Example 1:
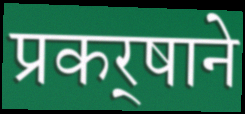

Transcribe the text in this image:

प्रकर्षाने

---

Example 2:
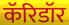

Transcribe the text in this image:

कॅरिडॉर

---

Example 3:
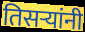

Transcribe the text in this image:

तिसऱ्यांनी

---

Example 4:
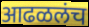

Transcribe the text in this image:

आढळलंच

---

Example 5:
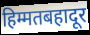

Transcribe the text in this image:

हिम्मतबहादूर